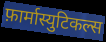
फ़ार्मास्युटिकल्स